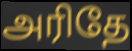
அரிதே